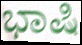
ಭಾಷಿ